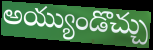
అయ్యుండొచ్చు